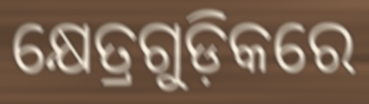
କ୍ଷେତ୍ରଗୁଡ଼ିକରେ